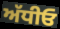
ਅੱਧੀਓ